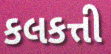
કલકત્તી